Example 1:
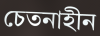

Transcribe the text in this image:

চেতনাহীন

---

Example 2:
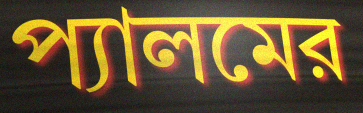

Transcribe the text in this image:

প্যালমের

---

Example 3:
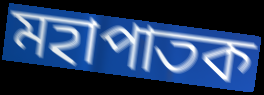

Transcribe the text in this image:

মহাপাতক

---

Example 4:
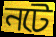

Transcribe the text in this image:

নটে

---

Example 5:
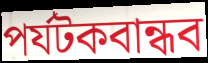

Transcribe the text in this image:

পর্যটকবান্ধব